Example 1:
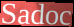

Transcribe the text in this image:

Sadoc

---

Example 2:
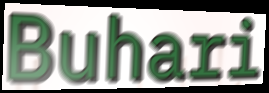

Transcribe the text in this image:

Buhari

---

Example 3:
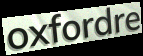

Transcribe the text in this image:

oxfordre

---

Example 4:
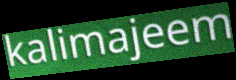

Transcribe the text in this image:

kalimajeem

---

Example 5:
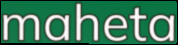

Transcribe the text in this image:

maheta